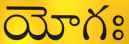
యోగః